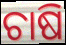
ଚାଷି